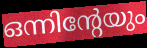
ഒന്നിന്റേയും